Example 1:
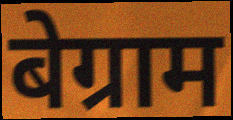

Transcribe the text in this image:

बेग्राम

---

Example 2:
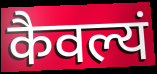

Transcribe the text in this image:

कैवल्यं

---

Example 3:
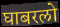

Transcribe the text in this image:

घाबरलो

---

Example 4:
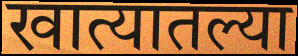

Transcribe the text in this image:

खात्यातल्या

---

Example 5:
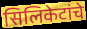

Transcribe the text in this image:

सिलिकेटांचे